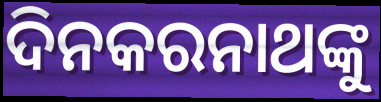
ଦିନକରନାଥଙ୍କୁ